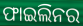
ଫାଇଲିନର